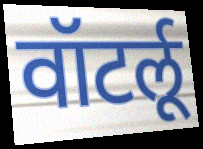
वॉटर्लू